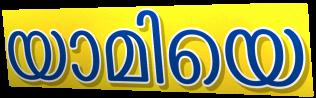
യാമിയെ